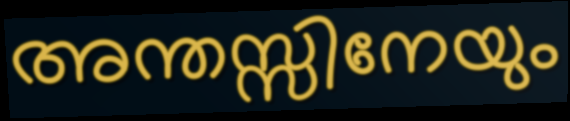
അന്തസ്സിനേയും